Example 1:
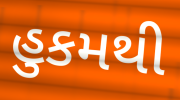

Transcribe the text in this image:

હુકમથી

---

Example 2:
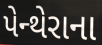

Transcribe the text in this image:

પેન્થેરાના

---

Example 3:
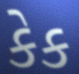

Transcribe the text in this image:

કેક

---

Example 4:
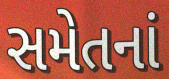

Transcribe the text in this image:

સમેતનાં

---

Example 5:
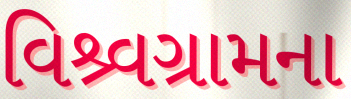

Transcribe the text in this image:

વિશ્ર્વગ્રામના